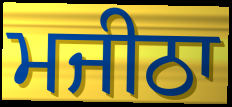
ਮਜੀਠਾ